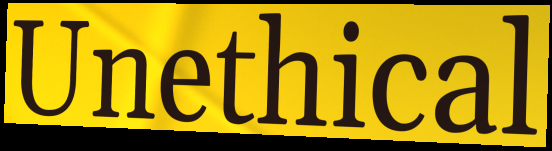
Unethical